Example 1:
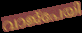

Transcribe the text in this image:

വാജ്പേയി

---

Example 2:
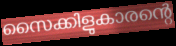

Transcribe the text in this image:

സൈക്കിളുകാരന്റെ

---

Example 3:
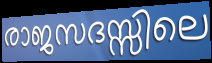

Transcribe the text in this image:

രാജസദസ്സിലെ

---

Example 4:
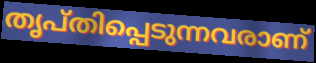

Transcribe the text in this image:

തൃപ്തിപ്പെടുന്നവരാണ്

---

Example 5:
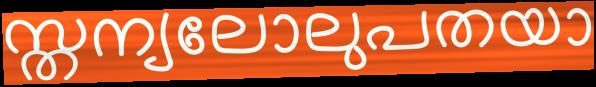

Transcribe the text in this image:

സ്തന്യലോലുപതയാ